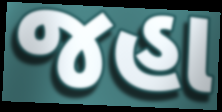
જહા